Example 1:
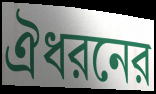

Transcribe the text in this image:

ঐধরনের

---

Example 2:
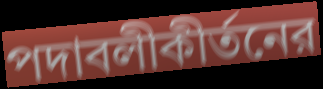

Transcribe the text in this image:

পদাবলীকীর্তনের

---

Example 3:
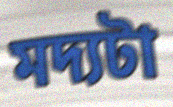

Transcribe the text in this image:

মদ্যটা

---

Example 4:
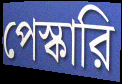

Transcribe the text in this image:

পেস্কারি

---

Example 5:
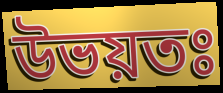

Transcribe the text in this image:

উভয়তঃ